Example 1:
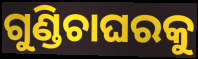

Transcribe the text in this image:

ଗୁଣ୍ଡିଚାଘରକୁ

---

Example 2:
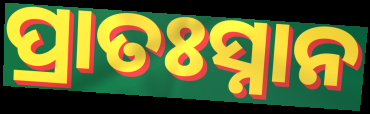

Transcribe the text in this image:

ପ୍ରାତଃସ୍ନାନ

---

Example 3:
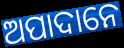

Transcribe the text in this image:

ଅପାଦାନେ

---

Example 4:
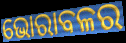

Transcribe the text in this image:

ଭୋରାବଳର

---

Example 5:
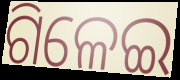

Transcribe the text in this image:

ଗିଳେଇ